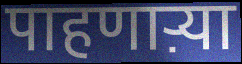
पाहणाऱ्‍या